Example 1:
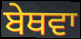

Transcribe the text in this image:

ਬੇਥਵਾ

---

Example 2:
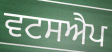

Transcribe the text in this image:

ਵਟਸਐਪ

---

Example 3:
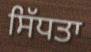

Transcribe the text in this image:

ਸਿੱਧਤਾ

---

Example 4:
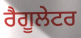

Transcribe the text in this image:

ਰੈਗੂਲੇਟਰ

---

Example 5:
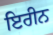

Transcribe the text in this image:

ਇਰੀਨ